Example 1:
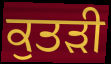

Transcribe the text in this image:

ਕੁਤੜੀ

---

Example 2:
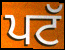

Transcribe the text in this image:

ਪਟੱ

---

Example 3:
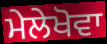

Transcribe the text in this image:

ਮੇਲੇਖੋਵਾ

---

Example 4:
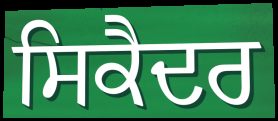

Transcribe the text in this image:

ਸਿਕੈਦਰ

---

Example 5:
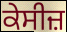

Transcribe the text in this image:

ਕੇਸੀਜ਼